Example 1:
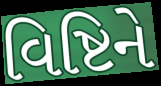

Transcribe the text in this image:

વિષ્ટિને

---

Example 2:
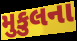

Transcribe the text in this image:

મુકુલના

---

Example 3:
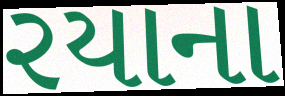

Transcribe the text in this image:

રયાના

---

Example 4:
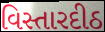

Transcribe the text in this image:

વિસ્તારદીઠ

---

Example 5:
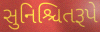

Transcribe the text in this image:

સુનિશ્ચિતરૂપે